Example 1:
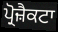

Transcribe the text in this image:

ਪ੍ਰੋਜ਼ੈਕਟਾ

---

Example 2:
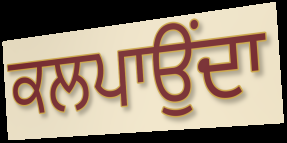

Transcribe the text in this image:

ਕਲਪਾਉਂਦਾ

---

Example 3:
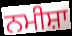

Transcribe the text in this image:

ਨਮੀਸ਼ਾ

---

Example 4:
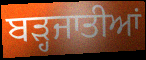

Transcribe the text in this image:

ਬੜ੍ਹਜਾਤੀਆਂ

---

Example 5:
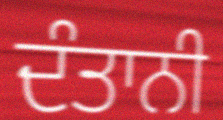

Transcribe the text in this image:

ਦੰਤਾਨੀ